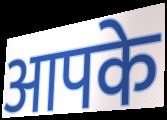
आपके